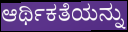
ಆರ್ಥಿಕತೆಯನ್ನು